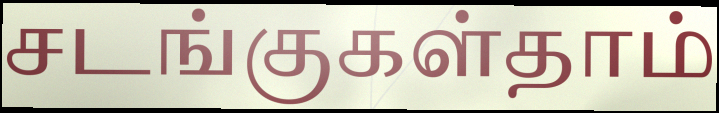
சடங்குகள்தாம்